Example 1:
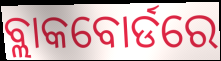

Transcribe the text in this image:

ବ୍ଲାକବୋର୍ଡରେ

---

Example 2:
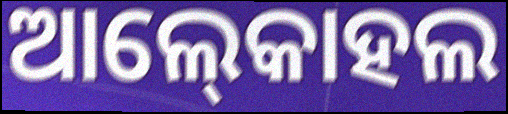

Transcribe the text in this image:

ଆଲ୍‍କୋହଲ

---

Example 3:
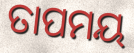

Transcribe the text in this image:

ତାପମୟ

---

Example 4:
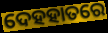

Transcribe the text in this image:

ଦେହହାତରେ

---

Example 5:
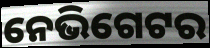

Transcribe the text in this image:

ନେଭିଗେଟର